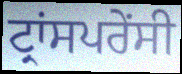
ਟ੍ਰਾਂਸਪਰੇਂਸੀ